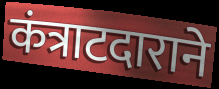
कंत्राटदाराने